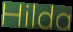
Hilda